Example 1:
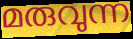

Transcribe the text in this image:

മരുവുന്ന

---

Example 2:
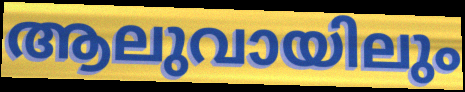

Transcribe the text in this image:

ആലുവായിലും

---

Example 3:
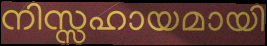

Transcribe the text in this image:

നിസ്സഹായമായി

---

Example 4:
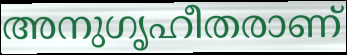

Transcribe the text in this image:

അനുഗൃഹീതരാണ്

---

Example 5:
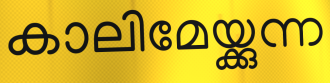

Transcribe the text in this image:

കാലിമേയ്ക്കുന്ന